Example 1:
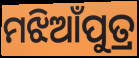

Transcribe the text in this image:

ମଝିଆଁପୁତ୍ର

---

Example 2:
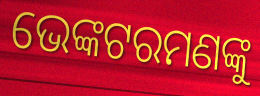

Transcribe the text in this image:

ଭେଙ୍କଟରମଣଙ୍କୁ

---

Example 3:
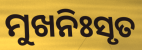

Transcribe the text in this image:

ମୁଖନିଃସୃତ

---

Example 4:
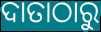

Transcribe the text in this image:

ଦାତାଠାରୁ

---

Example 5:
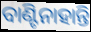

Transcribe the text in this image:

ବାଣ୍ଟିନାହାନ୍ତି